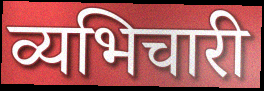
व्यभिचारी